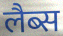
लैब्स